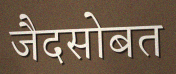
जैदसोबत